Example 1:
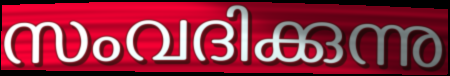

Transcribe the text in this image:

സംവദിക്കുന്നു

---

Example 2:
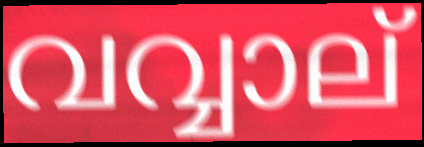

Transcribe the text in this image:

വവ്വാല്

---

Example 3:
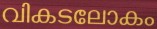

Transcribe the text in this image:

വികടലോകം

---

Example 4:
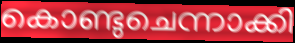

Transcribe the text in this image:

കൊണ്ടുചെന്നാക്കി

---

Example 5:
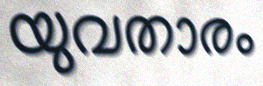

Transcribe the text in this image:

യുവതാരം